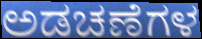
ಅಡಚಣೆಗಳ